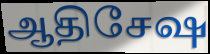
ஆதிசேஷ